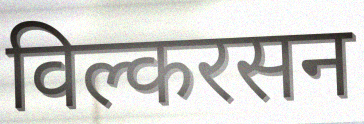
विल्करसन